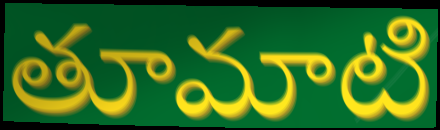
తూమాటి